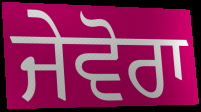
ਜੇਵੋਰਾ